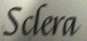
Sclera